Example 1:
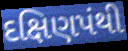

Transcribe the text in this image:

દક્ષિણપંથી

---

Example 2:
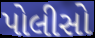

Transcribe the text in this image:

પોલીસો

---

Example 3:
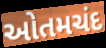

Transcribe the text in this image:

ઓતમચંદ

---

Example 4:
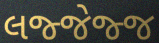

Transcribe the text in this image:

લજ્જેજ્જ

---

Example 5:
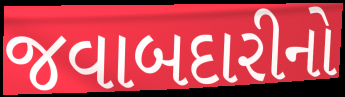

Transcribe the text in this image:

જવાબદારીનો